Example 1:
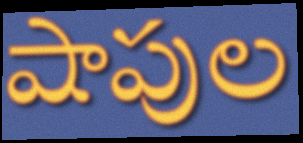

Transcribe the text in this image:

షాపుల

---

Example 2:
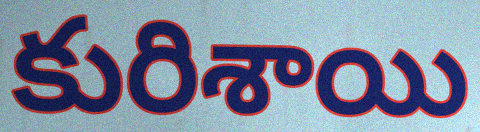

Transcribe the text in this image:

కురిశాయి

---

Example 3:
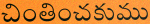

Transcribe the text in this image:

చింతించకుము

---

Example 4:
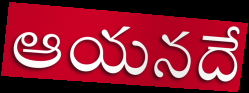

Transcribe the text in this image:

ఆయనదే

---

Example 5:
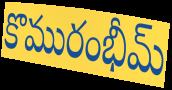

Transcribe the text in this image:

కొమురంభీమ్